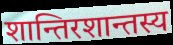
शान्तिरशान्तस्य